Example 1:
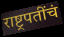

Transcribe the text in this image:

राष्ट्रपतींचं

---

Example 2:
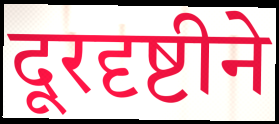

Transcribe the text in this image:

दूरदृष्टीने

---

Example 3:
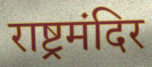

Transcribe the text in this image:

राष्ट्रमंदिर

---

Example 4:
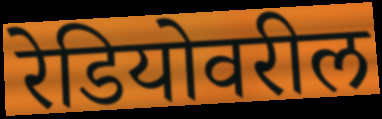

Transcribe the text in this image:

रेडियोवरील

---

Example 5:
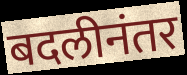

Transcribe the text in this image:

बदलीनंतर